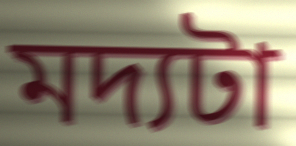
মদ্যটা